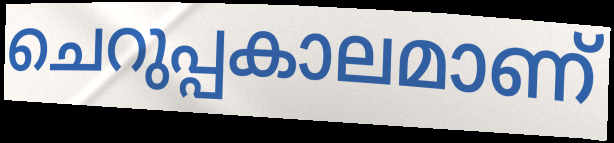
ചെറുപ്പകാലമാണ്